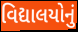
વિદ્યાલયોનું